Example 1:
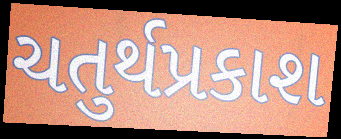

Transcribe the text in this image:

ચતુર્થપ્રકાશ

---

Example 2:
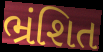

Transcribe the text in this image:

ભ્રંશિત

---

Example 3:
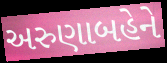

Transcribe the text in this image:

અરુણાબહેને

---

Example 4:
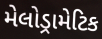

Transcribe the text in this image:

મેલોડ્રામેટિક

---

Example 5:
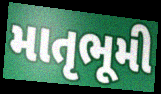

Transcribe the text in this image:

માતૃભૂમી